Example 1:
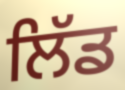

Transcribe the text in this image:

ਲਿੱਡ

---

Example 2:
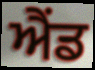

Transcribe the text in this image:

ਐੰਡ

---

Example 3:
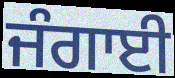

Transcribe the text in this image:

ਜੰਗਾਈ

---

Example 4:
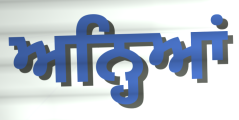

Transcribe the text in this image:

ਅਨ੍ਹਿਆਂ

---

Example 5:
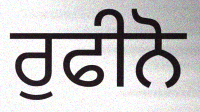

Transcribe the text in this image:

ਰੁਫੀਨੋ